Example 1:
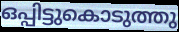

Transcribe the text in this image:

ഒപ്പിട്ടുകൊടുത്തു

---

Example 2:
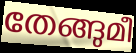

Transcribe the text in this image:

തേങ്ങുമീ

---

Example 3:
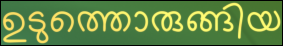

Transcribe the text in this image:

ഉടുത്തൊരുങ്ങിയ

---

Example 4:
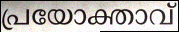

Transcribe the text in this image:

പ്രയോക്താവ്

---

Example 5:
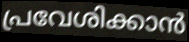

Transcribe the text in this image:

പ്രവേശിക്കാൻ